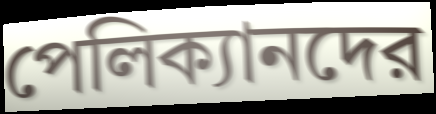
পেলিক্যানদের